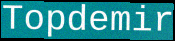
Topdemir